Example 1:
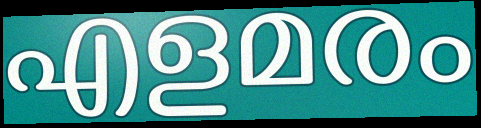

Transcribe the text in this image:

എളമരം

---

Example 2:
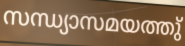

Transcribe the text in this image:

സന്ധ്യാസമയത്തു്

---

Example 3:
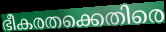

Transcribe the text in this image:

ഭീകരതക്കെതിരെ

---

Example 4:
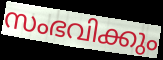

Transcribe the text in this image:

സംഭവിക്കും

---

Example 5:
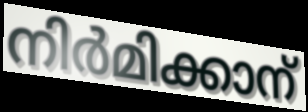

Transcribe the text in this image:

നിർമിക്കാന്